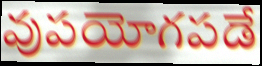
వుపయోగపడే